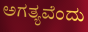
ಅಗತ್ಯವೆಂದು